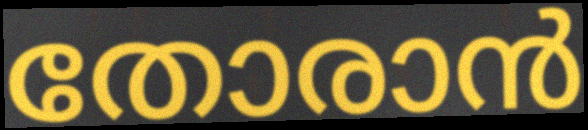
തോരാൻ